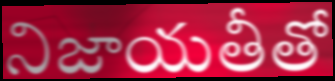
నిజాయతీతో